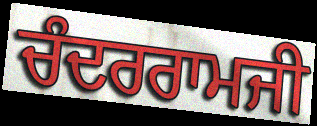
ਚੰਦਰਰਾਮਜੀ